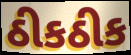
ઠીકઠીક